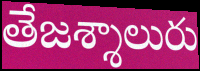
తేజశ్శాలురు